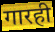
गारही